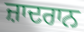
ਜ਼ਾਦਰਾਨ